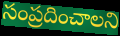
సంప్రదించాలని